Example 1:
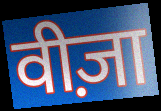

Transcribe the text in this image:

वीज़ा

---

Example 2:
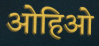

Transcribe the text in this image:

ओहिओ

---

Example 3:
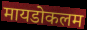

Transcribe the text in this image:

मायडोकलम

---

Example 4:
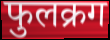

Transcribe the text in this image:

फुलक्रग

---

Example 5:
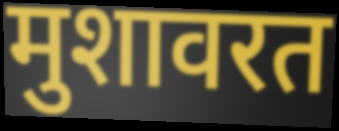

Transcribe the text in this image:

मुशावरत